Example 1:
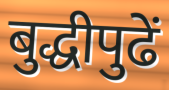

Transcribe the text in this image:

बुद्धीपुढें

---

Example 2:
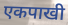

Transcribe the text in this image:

एकपाखी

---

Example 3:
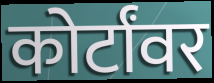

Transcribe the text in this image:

कोर्टांवर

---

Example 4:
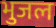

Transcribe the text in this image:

भुजल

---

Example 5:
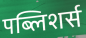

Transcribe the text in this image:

पब्लिशर्स